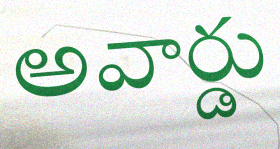
అవార్డు